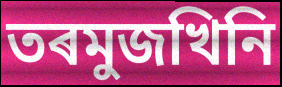
তৰমুজখিনি